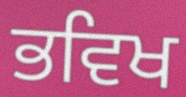
ਭਵਿਖ